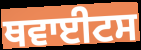
ਥਵਾਈਟਸ